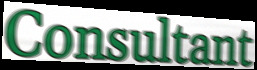
Consultant